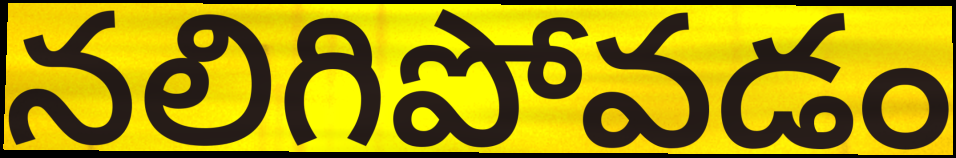
నలిగిపోవడం